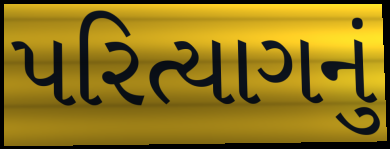
પરિત્યાગનું